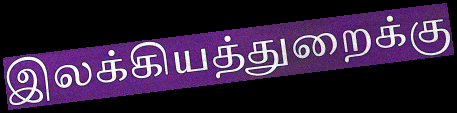
இலக்கியத்துறைக்கு